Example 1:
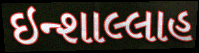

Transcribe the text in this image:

ઇન્શાલ્લાહ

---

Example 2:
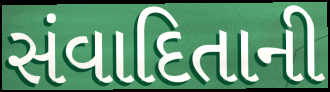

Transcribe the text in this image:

સંવાદિતાની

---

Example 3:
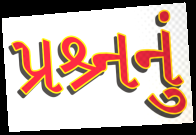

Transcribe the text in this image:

પ્રશ્ર્નનું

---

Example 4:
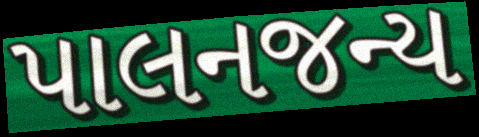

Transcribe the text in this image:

પાલનજન્ય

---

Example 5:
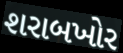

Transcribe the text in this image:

શરાબખોર